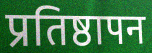
प्रतिष्ठापन